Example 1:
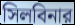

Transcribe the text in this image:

সিলবিনার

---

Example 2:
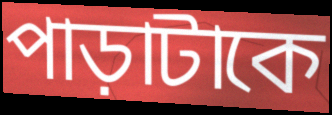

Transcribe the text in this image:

পাড়াটাকে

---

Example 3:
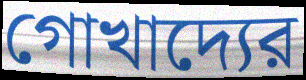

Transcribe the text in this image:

গোখাদ্যের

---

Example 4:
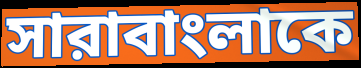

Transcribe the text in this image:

সারাবাংলাকে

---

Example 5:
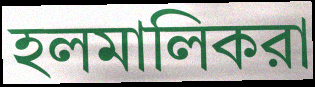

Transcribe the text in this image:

হলমালিকরা